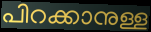
പിറക്കാനുള്ള